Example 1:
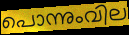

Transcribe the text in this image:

പൊന്നുംവില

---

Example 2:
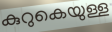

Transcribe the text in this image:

കുറുകെയുള്ള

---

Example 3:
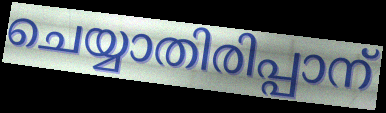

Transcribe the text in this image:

ചെയ്യാതിരിപ്പാന്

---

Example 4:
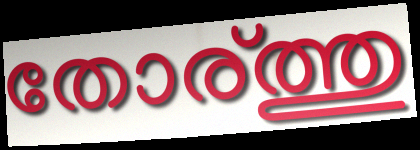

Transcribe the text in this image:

തോര്ത്തു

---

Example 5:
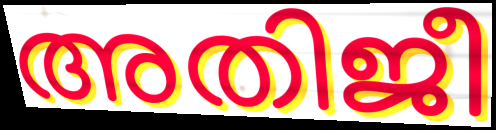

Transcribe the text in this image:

അതിജീ